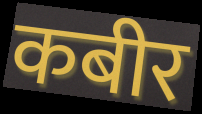
कबीर